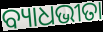
ବ୍ୟାଧଭୀତା